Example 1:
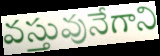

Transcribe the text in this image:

వస్తువునేగాని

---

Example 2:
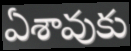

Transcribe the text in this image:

ఏశావుకు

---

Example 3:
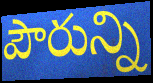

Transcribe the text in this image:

పౌరున్ని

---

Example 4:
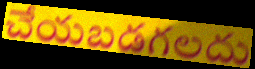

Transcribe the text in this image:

చేయబడగలదు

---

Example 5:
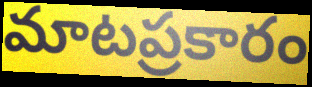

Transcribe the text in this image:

మాటప్రకారం